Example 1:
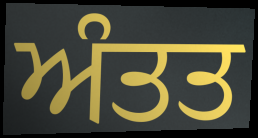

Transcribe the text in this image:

ਅੰਤਤ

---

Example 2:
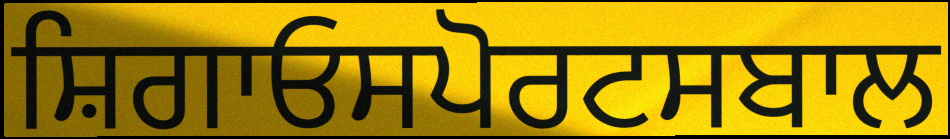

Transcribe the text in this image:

ਸ਼ਿਗਾਓਸਪੋਰਟਸਬਾਲ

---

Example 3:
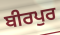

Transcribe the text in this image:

ਬੀਰਪੁਰ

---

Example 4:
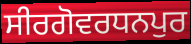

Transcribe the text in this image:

ਸੀਰਗੋਵਰਧਨਪੁਰ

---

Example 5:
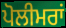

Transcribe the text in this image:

ਪੋਲੀਮਰਾਂ